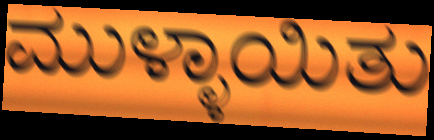
ಮುಳ್ಳಾಯಿತು